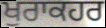
ਖੁਰਾਕਹਰ